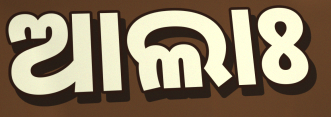
ଆଲାଃ